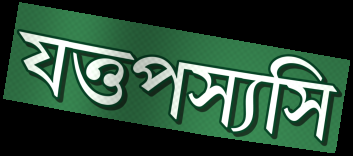
যত্তপস্যসি